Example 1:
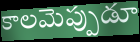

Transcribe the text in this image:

కాలమెప్పుడూ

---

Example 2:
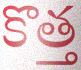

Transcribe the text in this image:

కొత్త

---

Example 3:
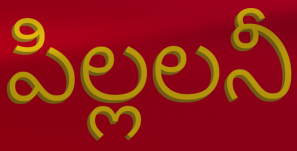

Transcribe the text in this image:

పిల్లలనీ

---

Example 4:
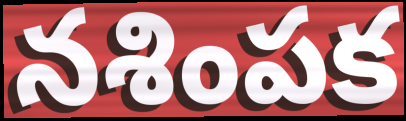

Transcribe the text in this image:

నశింపక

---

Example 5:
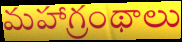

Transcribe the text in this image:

మహాగ్రంథాలు